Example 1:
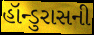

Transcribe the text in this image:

હૉન્ડુરાસની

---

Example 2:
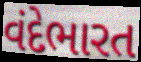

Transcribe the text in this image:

વંદેભારત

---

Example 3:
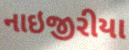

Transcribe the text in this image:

નાઇજીરીયા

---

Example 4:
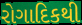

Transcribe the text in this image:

રોગાદિકથી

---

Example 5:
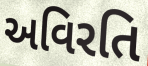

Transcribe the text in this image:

અવિરતિ